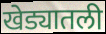
खेड्यातली